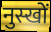
नुस्‍खों